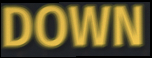
DOWN